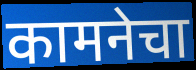
कामनेचा